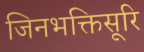
जिनभक्तिसूरि